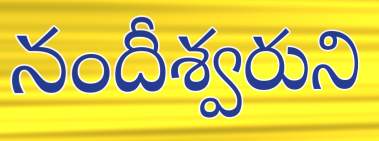
నందీశ్వరుని